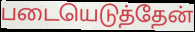
படையெடுத்தேன்